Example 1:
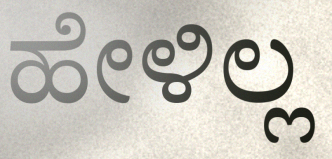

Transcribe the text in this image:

ಹೇಳಿಲ್ಲ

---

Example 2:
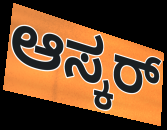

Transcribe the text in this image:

ಆಸ್ಕರ್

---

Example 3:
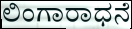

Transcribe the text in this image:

ಲಿಂಗಾರಾಧನೆ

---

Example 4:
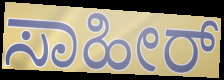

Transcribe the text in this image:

ಸಾಹೀರ್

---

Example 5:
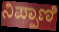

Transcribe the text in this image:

ನಿಪ್ಪಾಣಿ